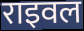
राइवल